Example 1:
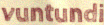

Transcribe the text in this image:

vuntundi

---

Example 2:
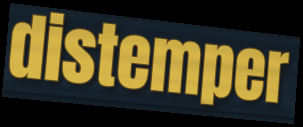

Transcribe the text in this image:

distemper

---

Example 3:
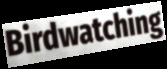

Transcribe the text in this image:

Birdwatching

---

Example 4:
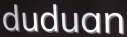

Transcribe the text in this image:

duduan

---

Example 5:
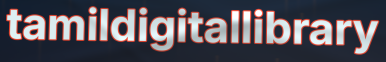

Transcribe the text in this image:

tamildigitallibrary